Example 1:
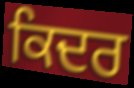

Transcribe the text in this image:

ਕਿਦਰ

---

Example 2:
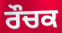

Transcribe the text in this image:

ਰੌਚਕ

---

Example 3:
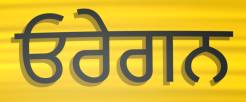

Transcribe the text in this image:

ਓਰੇਗਨ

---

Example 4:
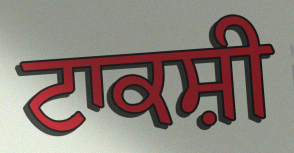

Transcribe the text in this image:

ਟਾਕਸ਼ੀ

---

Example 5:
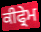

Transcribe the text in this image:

ਕੀਫ੍ਰੇਮ